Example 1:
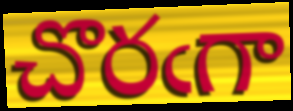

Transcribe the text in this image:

చొరఁగా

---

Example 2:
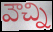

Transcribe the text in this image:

వౌచ్ని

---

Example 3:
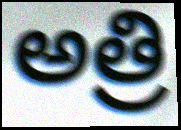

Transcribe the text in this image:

అత్రి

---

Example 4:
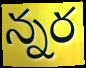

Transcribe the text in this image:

న్నర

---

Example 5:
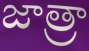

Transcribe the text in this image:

జాత్రా